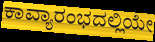
ಕಾವ್ಯಾರಂಭದಲ್ಲಿಯೇ